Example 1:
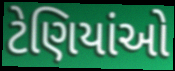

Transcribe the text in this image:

ટેણિયાંઓ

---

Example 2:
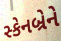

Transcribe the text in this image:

સ્કેનબ્રેને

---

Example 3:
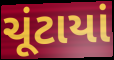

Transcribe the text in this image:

ચૂંટાયાં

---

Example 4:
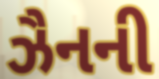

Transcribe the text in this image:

ઝૈનની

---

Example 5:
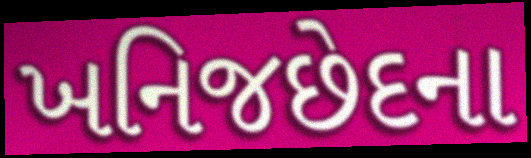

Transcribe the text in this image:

ખનિજછેદના